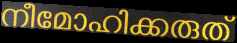
നീമോഹിക്കരുത്